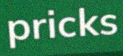
pricks